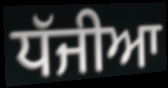
ਧੱਜੀਆ